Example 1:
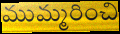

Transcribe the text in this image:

ముమ్మరించి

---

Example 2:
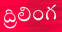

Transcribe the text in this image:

ద్రిలింగ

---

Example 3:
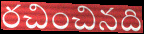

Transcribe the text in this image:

రచించినది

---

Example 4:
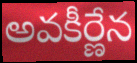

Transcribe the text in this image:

అవకీర్ణేన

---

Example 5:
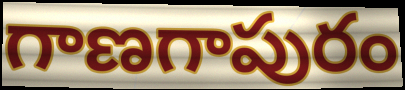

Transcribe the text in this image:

గాణగాపురం